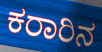
ಕರಾರಿನ